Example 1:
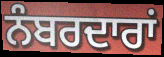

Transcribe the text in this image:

ਨੰਬਰਦਾਰਾਂ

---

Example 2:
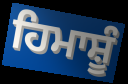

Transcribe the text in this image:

ਹਿਮਾਸ਼ੂੰ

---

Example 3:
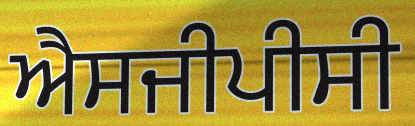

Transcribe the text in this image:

ਐਸਜੀਪੀਸੀ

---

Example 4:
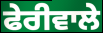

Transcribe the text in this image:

ਫੇਰੀਵਾਲੇ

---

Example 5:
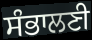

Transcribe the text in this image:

ਸੰਭਾਲਣੀ